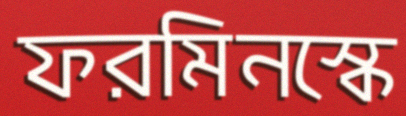
ফরমিনস্কে